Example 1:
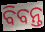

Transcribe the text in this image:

ବିବନ୍ତ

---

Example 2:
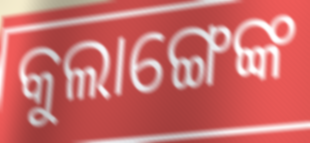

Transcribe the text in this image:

କୁଲାଙ୍ଗେଙ୍କ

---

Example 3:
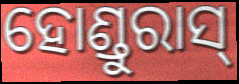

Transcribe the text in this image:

ହୋଣ୍ଡୁରାସ୍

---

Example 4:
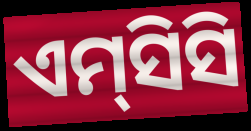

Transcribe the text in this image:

ଏମ୍‌ସିସି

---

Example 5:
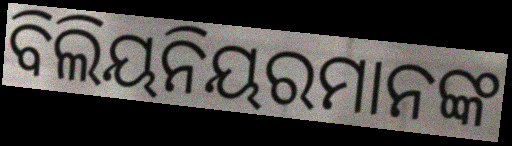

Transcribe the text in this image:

ବିଲିୟନିୟରମାନଙ୍କ